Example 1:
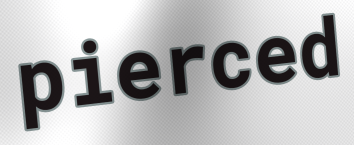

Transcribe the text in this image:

pierced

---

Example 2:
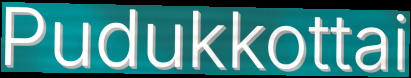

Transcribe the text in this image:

Pudukkottai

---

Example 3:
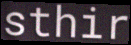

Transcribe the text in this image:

sthir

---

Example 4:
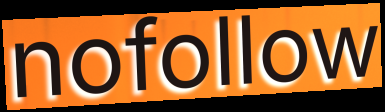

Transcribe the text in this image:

nofollow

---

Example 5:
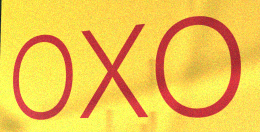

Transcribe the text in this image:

OXO